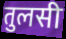
तुलसी